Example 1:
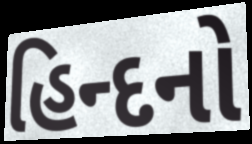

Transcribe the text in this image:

હિન્દનો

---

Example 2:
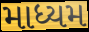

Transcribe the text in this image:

માધ્યમ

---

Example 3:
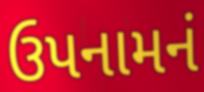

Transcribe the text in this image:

ઉપનામનં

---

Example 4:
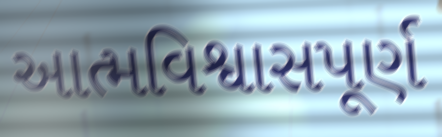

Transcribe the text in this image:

આત્મવિશ્વાસપૂર્ણ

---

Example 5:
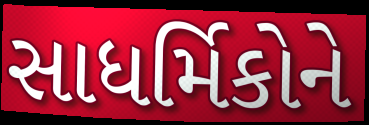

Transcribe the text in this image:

સાધર્મિકોને